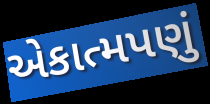
એકાત્મપણું